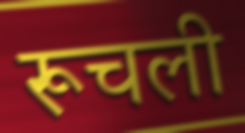
रूचली